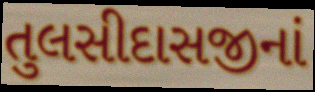
તુલસીદાસજીનાં